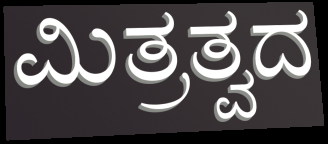
ಮಿತ್ರತ್ವದ